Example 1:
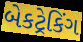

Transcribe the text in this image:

બેકટ્રેકિંગ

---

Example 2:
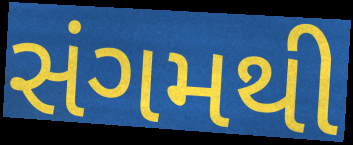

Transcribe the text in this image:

સંગમથી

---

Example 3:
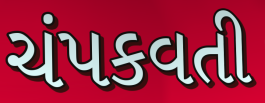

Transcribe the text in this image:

ચંપકવતી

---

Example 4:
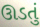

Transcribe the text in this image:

ઊડતું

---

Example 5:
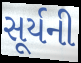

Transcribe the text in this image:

સૂર્યની